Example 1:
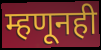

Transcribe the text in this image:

म्हणूनही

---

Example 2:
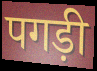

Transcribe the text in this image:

पगड़ी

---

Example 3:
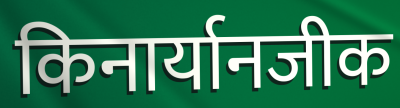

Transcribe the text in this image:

किनार्यानजीक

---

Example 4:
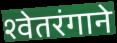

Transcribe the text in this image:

श्वेतरंगाने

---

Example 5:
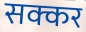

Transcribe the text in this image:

सक्कर